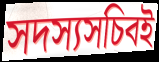
সদস্যসচিবই